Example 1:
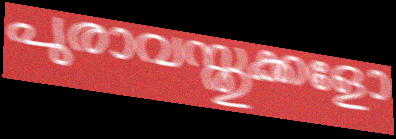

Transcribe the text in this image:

പുരാവസ്തുക്കളോ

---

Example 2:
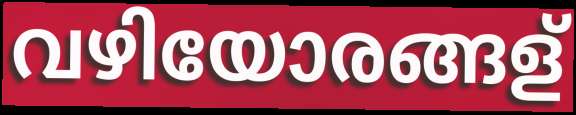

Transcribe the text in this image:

വഴിയോരങ്ങള്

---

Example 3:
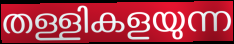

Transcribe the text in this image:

തള്ളികളയുന്ന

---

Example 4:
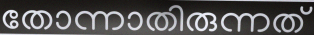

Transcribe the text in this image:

തോന്നാതിരുന്നത്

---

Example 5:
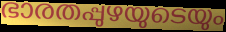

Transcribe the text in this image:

ഭാരതപ്പുഴയുടെയും